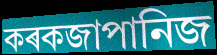
কৰকজাপানিজ